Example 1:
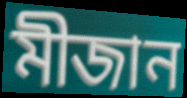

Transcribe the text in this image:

মীজান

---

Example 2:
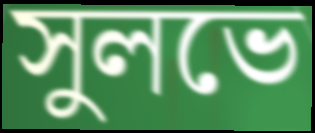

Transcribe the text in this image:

সুলভে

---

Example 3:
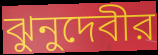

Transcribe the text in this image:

ঝুনুদেবীর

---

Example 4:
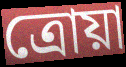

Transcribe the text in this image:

ত্রোয়া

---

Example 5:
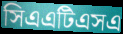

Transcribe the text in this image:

সিএএটিএসএ